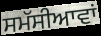
ਸਮੱਸੀਆਵਾਂ